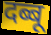
दब्बू